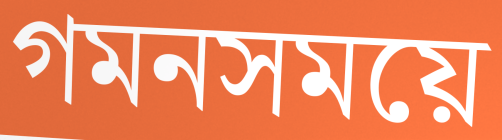
গমনসময়ে